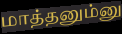
மாத்தனும்னு